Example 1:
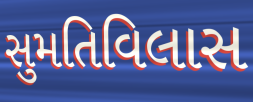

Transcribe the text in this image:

સુમતિવિલાસ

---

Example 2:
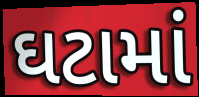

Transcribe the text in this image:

ઘટામાં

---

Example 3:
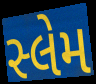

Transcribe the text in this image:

સ્લેમ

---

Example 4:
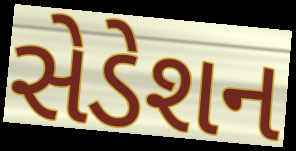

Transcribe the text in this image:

સેડેશન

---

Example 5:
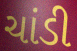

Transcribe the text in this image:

ચાંડી